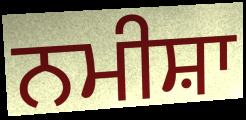
ਨਮੀਸ਼ਾ